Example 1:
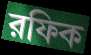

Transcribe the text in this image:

রফিক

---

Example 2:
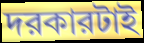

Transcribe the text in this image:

দরকারটাই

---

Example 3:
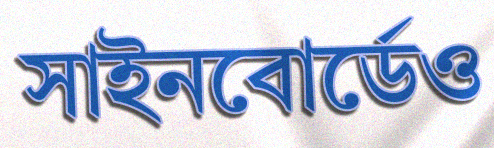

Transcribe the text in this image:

সাইনবোর্ডেও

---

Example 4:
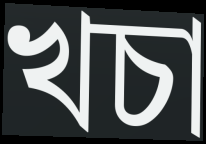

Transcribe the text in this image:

খচা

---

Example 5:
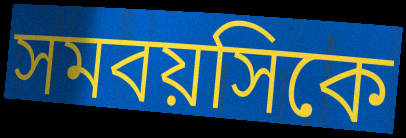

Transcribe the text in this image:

সমবয়সিকে